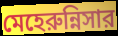
মেহেরুন্নিসার